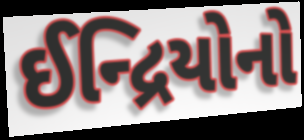
ઈન્દ્રિયોનો